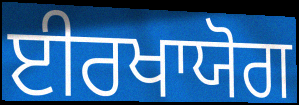
ਈਰਖਾਯੋਗ